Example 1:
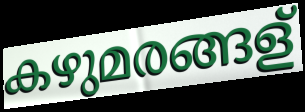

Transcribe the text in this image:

കഴുമരങ്ങള്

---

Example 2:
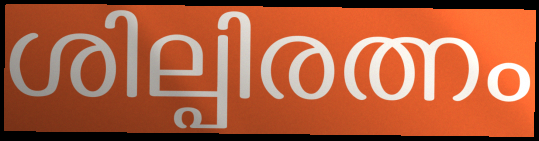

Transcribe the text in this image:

ശില്പിരത്നം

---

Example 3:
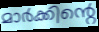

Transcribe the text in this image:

മാർക്കിന്റെ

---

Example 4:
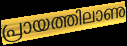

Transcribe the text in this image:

പ്രായത്തിലാണു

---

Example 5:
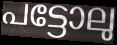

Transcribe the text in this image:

പട്ടോലു